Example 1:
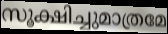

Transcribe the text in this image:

സൂക്ഷിച്ചുമാത്രമേ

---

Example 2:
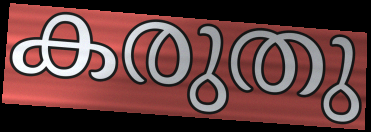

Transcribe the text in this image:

കരുതു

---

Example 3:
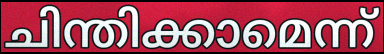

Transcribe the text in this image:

ചിന്തിക്കാമെന്ന്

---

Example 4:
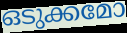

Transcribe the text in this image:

ഒടുക്കമോ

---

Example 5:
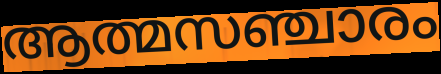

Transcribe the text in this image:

ആത്മസഞ്ചാരം